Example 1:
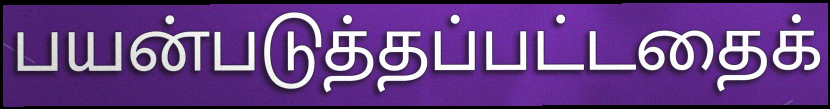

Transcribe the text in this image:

பயன்படுத்தப்பட்டதைக்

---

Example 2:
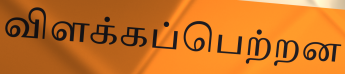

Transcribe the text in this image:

விளக்கப்பெற்றன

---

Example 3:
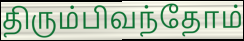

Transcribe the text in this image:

திரும்பிவந்தோம்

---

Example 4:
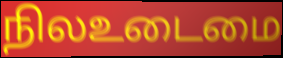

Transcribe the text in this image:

நிலஉடைமை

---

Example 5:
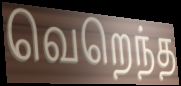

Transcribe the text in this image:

வெறெந்த